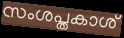
സംശപ്തകാശ്